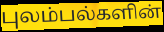
புலம்பல்களின்